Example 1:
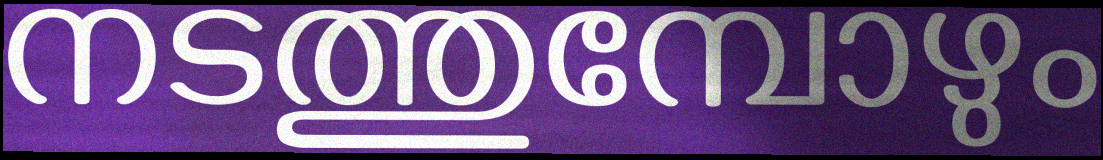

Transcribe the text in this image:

നടത്തുമ്പോഴും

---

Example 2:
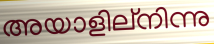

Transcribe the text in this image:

അയാളില്നിന്നു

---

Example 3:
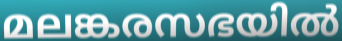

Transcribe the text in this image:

മലങ്കരസഭയിൽ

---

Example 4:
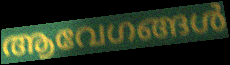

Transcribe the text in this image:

ആവേഗങ്ങൾ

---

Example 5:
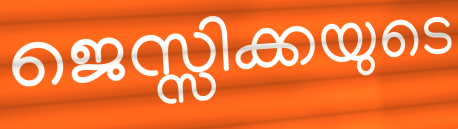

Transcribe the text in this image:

ജെസ്സിക്കയുടെ